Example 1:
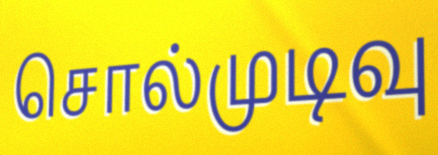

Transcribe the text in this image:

சொல்முடிவு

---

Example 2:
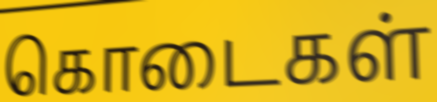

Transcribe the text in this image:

கொடைகள்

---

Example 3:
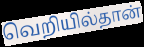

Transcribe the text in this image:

வெறியில்தான்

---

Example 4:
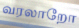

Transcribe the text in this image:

வரலாறோ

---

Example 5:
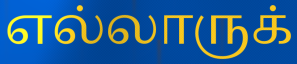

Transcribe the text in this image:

எல்லாருக்